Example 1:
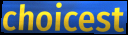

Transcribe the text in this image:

choicest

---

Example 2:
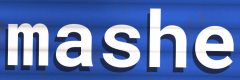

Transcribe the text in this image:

mashe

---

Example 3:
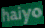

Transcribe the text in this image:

haiyo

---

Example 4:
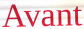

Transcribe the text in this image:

Avant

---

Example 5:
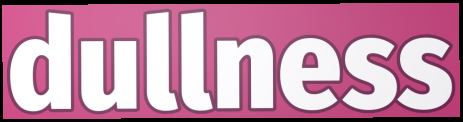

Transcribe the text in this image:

dullness